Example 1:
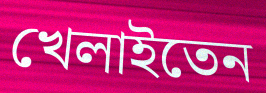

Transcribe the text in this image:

খেলাইতেন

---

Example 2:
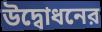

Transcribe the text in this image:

উদ্বোধনের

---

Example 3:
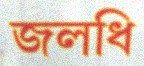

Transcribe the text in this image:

জলধি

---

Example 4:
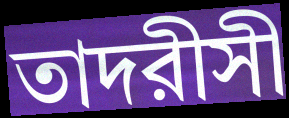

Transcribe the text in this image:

তাদরীসী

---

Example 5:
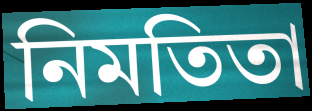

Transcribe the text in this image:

নিমতিতা